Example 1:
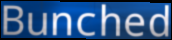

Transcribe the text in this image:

Bunched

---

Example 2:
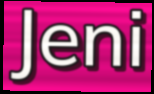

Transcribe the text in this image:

Jeni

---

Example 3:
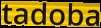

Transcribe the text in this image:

tadoba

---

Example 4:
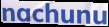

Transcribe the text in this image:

nachunu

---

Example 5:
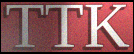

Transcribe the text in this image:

TTK